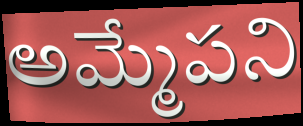
అమ్మేపని